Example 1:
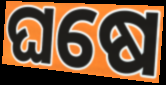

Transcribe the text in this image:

ଘଷେ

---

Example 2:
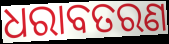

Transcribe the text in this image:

ଧରାବତରଣ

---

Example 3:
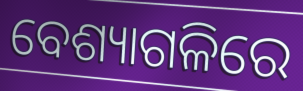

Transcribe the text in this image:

ବେଶ୍ୟାଗଳିରେ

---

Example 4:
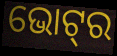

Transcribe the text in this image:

ଭୋଟ୍‍ର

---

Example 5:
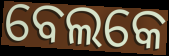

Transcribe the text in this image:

ବେଲକେ